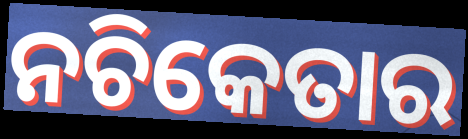
ନଚିକେତାର